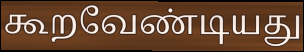
கூறவேண்டியது